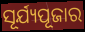
ସୂର୍ଯ୍ୟପୂଜାର